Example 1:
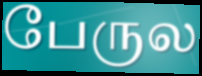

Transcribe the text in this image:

பேருல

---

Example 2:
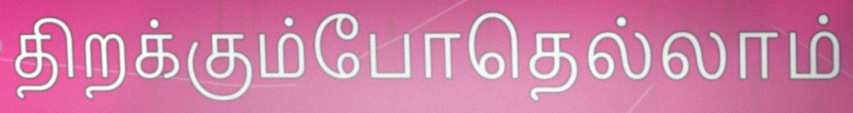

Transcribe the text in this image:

திறக்கும்போதெல்லாம்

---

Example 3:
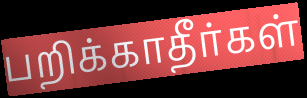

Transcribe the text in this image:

பறிக்காதீர்கள்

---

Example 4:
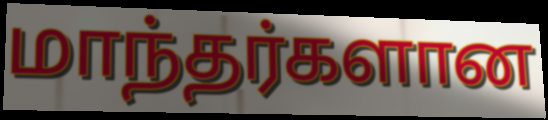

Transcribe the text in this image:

மாந்தர்களான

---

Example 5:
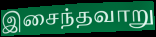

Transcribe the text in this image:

இசைந்தவாறு